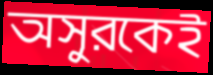
অসুরকেই